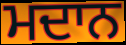
ਮਦਾਨ